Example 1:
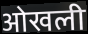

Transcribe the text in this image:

ओखली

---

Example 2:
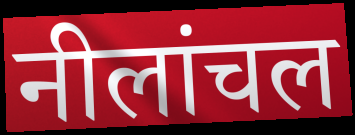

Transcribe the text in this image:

नीलांचल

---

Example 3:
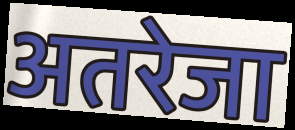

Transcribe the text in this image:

अतरेजा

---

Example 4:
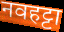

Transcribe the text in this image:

नवहट्टा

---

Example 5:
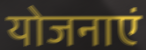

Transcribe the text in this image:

योजनाएं